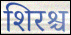
शिरश्च